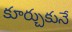
కూర్చుకునే